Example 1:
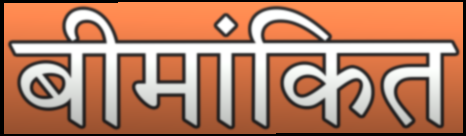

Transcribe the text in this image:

बीमांकित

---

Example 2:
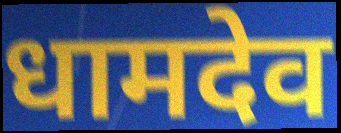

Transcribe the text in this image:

धामदेव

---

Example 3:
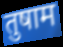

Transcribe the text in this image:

तुषाम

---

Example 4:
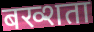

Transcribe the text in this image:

बख्शता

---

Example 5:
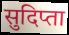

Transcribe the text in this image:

सुदिप्ता